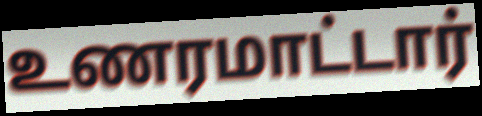
உணரமாட்டார்